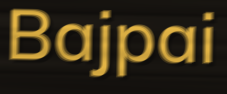
Bajpai